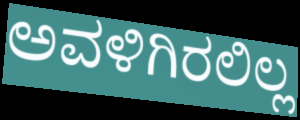
ಅವಳಿಗಿರಲಿಲ್ಲ